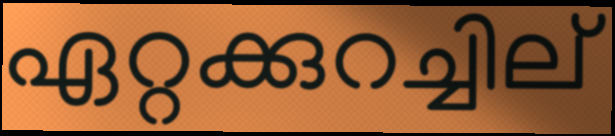
ഏറ്റക്കുറച്ചില്